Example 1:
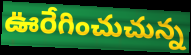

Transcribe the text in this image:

ఊరేగించుచున్న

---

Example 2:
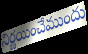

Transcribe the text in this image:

నిర్ణయించేముందు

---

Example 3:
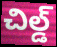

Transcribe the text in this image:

చిల్డ్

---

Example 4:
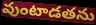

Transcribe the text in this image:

వుంటాడతను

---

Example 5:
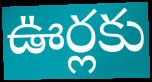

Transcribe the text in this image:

ఊర్లకు